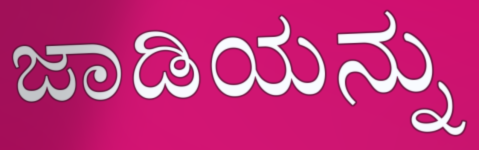
ಜಾಡಿಯನ್ನು